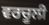
ਵਰਚੂਲੀ